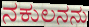
ನಕುಲನನು